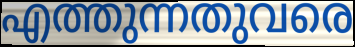
എത്തുന്നതുവരെ